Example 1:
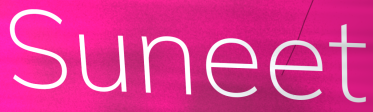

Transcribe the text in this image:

Suneet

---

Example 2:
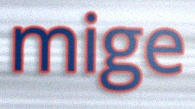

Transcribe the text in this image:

mige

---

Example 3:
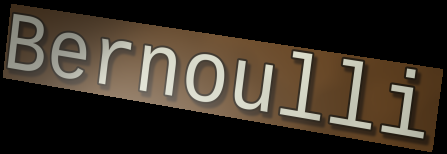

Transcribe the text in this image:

Bernoulli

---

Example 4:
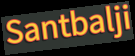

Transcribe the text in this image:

Santbalji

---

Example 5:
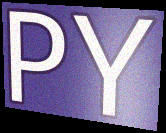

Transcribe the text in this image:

PY